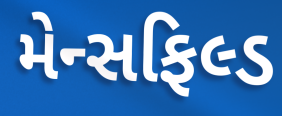
મેન્સફિલ્ડ